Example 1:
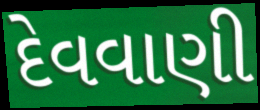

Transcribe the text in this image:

દેવવાણી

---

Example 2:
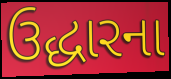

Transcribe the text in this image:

ઉદ્ધારના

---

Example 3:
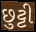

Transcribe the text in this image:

છુટ્ટી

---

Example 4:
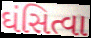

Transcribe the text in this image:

ઘંસિત્વા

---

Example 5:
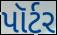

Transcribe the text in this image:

પૉર્ટર